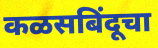
कळसबिंदूचा